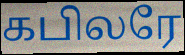
கபிலரே